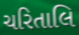
ચરિતાલિ